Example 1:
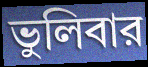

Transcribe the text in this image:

ভুলিবার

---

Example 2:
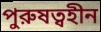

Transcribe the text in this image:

পুরুষত্বহীন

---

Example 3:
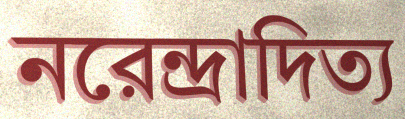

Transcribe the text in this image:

নরেন্দ্রাদিত্য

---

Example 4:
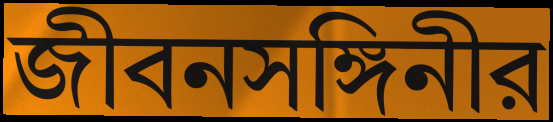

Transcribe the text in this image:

জীবনসঙ্গিনীর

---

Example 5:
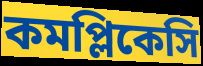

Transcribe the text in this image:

কমপ্লিকেসি